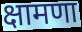
क्षामणा